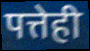
पत्तेही